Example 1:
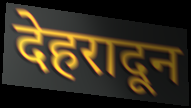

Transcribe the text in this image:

देहरादून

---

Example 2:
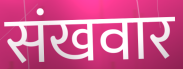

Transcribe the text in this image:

संखवार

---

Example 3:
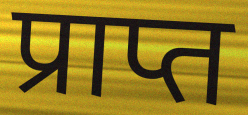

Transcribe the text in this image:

प्राप्‍त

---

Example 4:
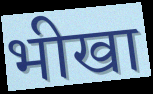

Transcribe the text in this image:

भीखा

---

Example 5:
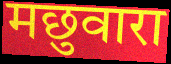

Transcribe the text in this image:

मछुवारा